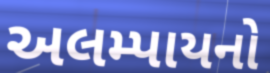
અલમ્પાયનો